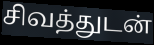
சிவத்துடன்